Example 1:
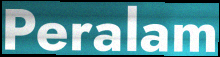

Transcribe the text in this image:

Peralam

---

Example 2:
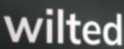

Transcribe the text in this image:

wilted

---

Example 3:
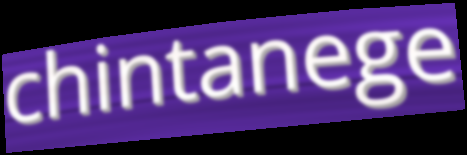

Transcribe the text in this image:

chintanege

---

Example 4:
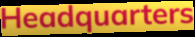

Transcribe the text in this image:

Headquarters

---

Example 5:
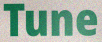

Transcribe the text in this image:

Tune